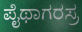
ಪೈಥಾಗರಸ್ರ